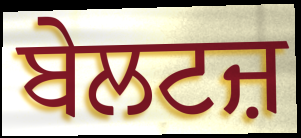
ਬੇਲਟਜ਼